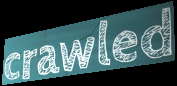
crawled